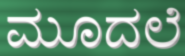
ಮೂದಲೆ